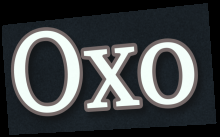
Oxo